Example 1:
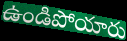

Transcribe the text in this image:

ఉండిపోయారు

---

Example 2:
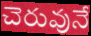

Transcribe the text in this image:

చెరువునే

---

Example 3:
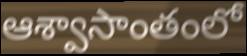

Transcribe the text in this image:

ఆశ్వాసాంతంలో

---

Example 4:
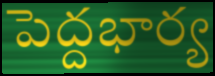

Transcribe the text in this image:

పెద్దభార్య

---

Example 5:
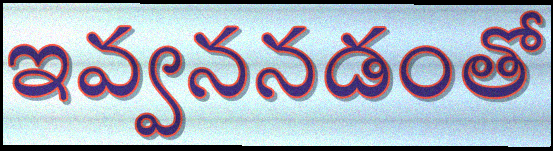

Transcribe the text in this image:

ఇవ్వననడంతో